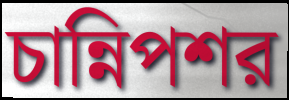
চান্নিপশর